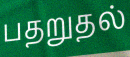
பதறுதல்